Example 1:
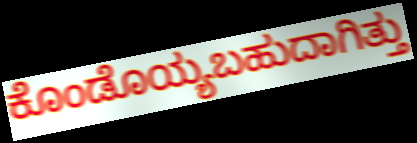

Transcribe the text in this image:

ಕೊಂಡೊಯ್ಯಬಹುದಾಗಿತ್ತು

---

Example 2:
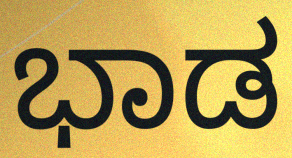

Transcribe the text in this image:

ಭಾಡ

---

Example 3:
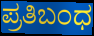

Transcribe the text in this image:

ಪ್ರತಿಬಂಧ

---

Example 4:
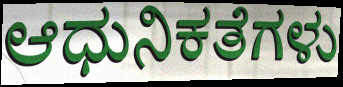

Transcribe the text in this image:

ಆಧುನಿಕತೆಗಳು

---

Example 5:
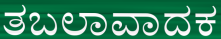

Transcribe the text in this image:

ತಬಲಾವಾದಕ